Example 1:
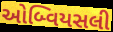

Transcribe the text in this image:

ઓબ્વિયસલી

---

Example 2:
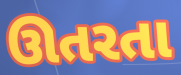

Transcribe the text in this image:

ઊતરતા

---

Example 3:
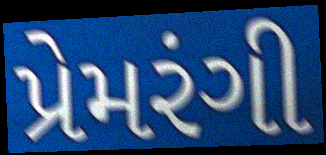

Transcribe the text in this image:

પ્રેમરંગી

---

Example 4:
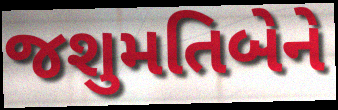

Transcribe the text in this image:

જશુમતિબેને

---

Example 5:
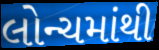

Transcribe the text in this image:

લોન્ચમાંથી